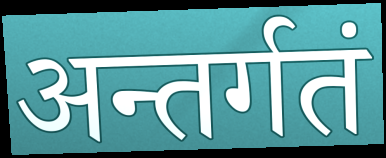
अन्तर्गतं